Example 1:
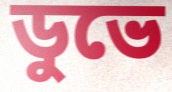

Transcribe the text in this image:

ডুভে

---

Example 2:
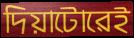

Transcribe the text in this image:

দিয়াটোৱেই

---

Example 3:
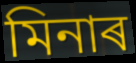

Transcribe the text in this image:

মিনাৰ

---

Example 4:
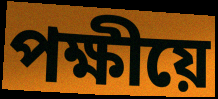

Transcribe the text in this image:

পক্ষীয়ে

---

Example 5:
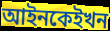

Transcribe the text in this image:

আইনকেইখন